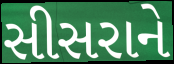
સીસરાને